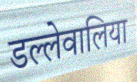
डल्लेवालिया